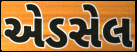
એડસેલ